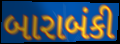
બારાબંકી